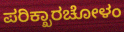
ಪರಿಕ್ಖಾರಚೋಳಂ